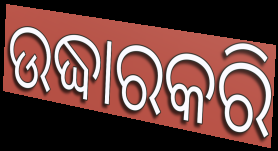
ଉଦ୍ଧାରକରି